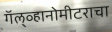
गॅल्व्हानोमीटराचा